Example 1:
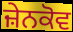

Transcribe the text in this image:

ਜ਼ੇਨਕੋਵ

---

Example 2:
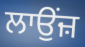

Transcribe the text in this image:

ਲਾਉਂਜ਼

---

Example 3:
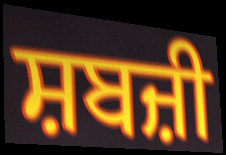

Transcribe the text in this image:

ਸ਼ਬਜ਼ੀ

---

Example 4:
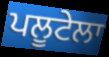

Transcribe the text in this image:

ਪਲੂਟੇਲਾ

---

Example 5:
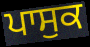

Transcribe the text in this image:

ਪਾਸੁਕ